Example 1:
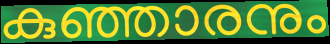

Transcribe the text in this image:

കുഞ്ഞാരനും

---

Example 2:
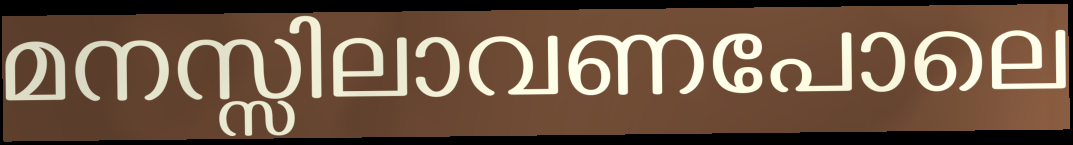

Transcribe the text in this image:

മനസ്സിലാവണപോലെ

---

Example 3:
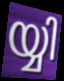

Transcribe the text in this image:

യ്യി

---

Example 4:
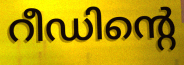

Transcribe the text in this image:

റീഡിന്റെ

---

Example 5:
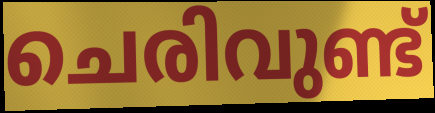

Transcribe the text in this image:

ചെരിവുണ്ട്